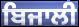
ਬਿਜਾਲੀ